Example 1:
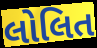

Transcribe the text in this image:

લોલિત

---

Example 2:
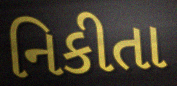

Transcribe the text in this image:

નિકીતા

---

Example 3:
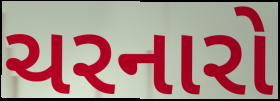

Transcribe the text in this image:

ચરનારો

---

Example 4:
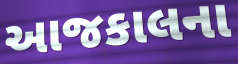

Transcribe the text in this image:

આજકાલના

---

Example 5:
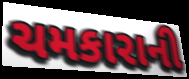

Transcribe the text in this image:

ચમકારાની